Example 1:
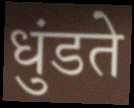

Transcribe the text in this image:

धुंडते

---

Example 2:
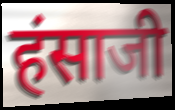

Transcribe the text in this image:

हंसाजी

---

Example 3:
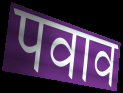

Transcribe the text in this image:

पवाव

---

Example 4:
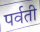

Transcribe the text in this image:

पर्वती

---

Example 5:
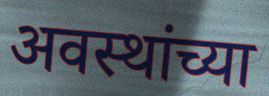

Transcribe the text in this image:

अवस्थांच्या